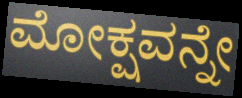
ಮೋಕ್ಷವನ್ನೇ